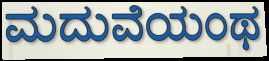
ಮದುವೆಯಂಥ